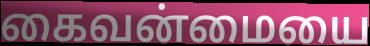
கைவன்மையை